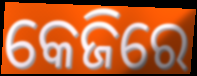
କେଜିରେ